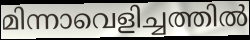
മിന്നാവെളിച്ചത്തിൽ